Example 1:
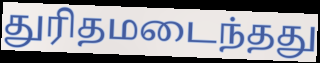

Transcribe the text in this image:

துரிதமடைந்தது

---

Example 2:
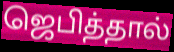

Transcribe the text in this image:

ஜெபித்தால்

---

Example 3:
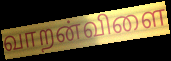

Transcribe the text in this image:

வாறன்விளை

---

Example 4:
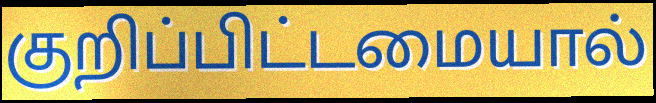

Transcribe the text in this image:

குறிப்பிட்டமையால்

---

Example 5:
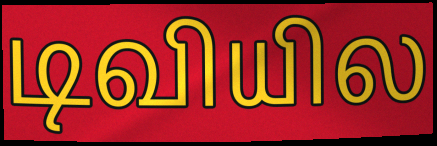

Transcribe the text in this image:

டிவியில